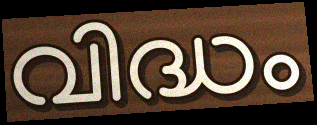
വിദ്ധം